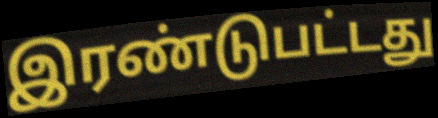
இரண்டுபட்டது